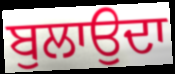
ਬੁਲਾਉਦਾ